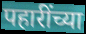
पहारींच्या